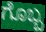
ಗೊಬ್ಬ